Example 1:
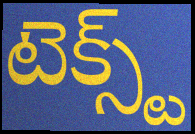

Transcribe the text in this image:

టెక్స్ట్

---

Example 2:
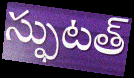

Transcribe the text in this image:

స్ఫుటత్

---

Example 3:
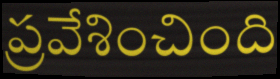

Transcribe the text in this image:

ప్రవేశించింది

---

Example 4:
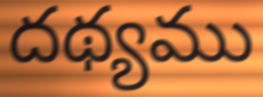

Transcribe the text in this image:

దథ్యము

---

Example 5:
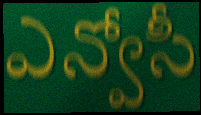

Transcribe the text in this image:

ఎన్వోసీ